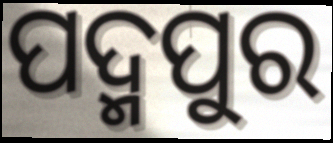
ପଦ୍ମପୁର